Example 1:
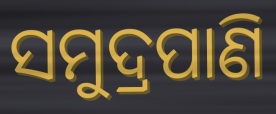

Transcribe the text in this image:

ସମୁଦ୍ରପାଣି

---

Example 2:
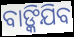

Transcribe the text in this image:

ବାଙ୍କିଯିବ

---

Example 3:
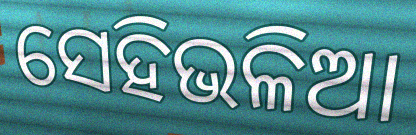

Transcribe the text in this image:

ସେହିଭଳିଆ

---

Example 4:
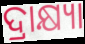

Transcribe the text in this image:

ଦ୍ରାକ୍ଷ୍ୟା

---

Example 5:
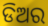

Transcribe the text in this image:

ଡିଅର